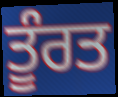
ਤੂੰਰਤ